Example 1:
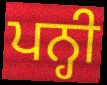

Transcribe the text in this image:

ਪਨ੍ਹੀ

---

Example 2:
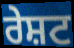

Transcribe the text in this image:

ਰੇਸ਼ਟ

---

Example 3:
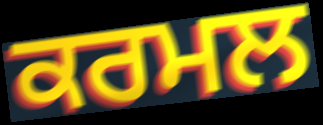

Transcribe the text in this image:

ਕਰਮਲ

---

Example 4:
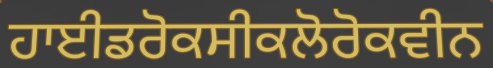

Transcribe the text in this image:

ਹਾਈਡਰੋਕਸੀਕਲੋਰੋਕਵੀਨ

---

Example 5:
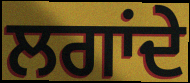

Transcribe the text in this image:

ਲਗਾਂਦੇ